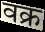
वक्र